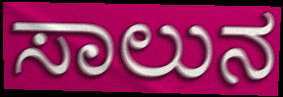
ಸಾಲುನ